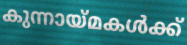
കുന്നായ്മകൾക്ക്